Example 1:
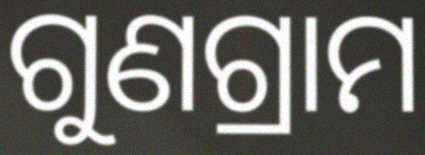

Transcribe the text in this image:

ଗୁଣଗ୍ରାମ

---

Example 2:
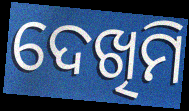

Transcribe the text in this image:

ଦେଖିମି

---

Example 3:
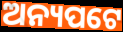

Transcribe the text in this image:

ଅନ୍ୟପଟେ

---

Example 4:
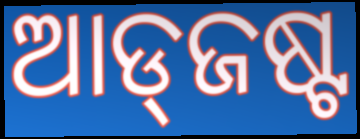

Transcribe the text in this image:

ଆଡ୍‌ଜଷ୍ଟ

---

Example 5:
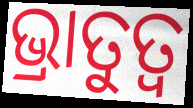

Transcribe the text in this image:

ଭ୍ରାତୁତ୍ଵ